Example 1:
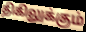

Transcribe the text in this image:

திகிலுக்கும்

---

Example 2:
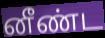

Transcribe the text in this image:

னீண்ட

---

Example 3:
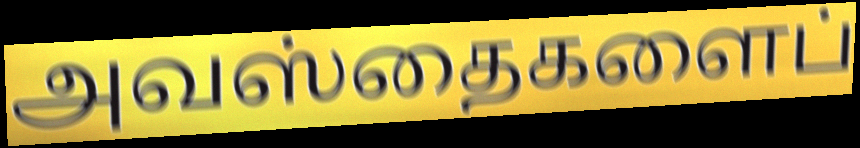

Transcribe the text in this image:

அவஸ்தைகளைப்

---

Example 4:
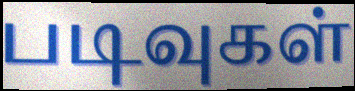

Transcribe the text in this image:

படிவுகள்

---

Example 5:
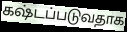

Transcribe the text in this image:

கஷ்டப்படுவதாக